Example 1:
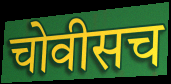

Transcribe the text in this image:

चोवीसच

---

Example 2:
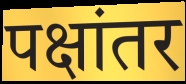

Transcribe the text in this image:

पक्षांतर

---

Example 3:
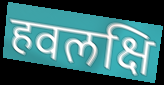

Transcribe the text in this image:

हवलक्षि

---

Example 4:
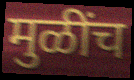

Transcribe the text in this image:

मुळींच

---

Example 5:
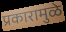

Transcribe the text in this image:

प्रकारामुळे